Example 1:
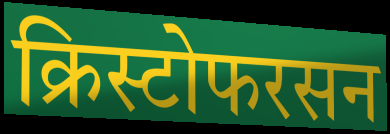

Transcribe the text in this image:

क्रिस्टोफरसन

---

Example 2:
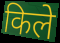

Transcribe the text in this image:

किले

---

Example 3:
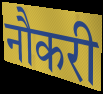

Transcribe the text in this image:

नौकरी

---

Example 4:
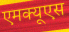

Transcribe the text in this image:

एमक्यूएस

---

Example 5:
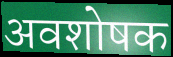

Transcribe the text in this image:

अवशोषक